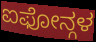
ಐಫೋನ್ಗಳ